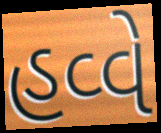
હવ્વે